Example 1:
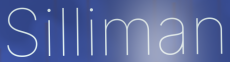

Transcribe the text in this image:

Silliman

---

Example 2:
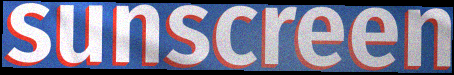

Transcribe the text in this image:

sunscreen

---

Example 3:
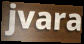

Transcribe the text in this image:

jvara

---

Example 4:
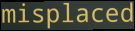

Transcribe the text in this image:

misplaced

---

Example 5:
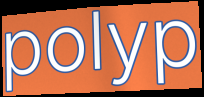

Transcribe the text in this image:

polyp